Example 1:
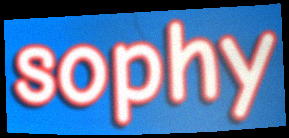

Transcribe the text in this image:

sophy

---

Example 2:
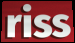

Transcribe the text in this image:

riss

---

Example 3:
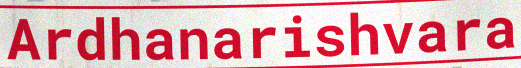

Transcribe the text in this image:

Ardhanarishvara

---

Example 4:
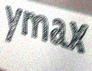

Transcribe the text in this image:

ymax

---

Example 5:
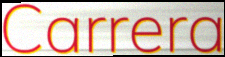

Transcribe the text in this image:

Carrera